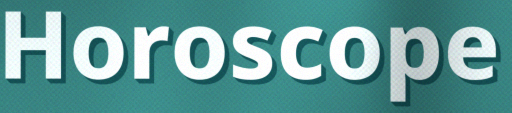
Horoscope